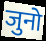
जुनो